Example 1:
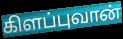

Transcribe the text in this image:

கிளப்புவான்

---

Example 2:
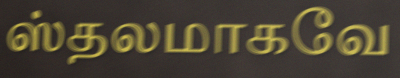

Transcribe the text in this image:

ஸ்தலமாகவே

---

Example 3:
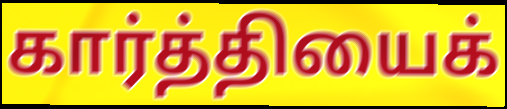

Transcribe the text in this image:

கார்த்தியைக்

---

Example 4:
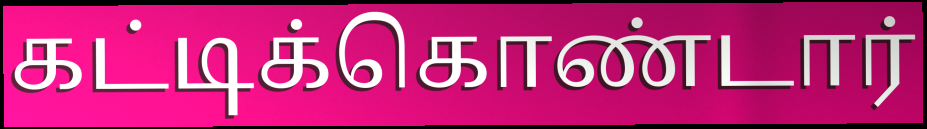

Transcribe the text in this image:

கட்டிக்கொண்டார்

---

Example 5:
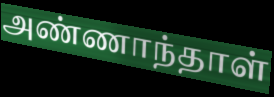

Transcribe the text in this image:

அண்ணாந்தாள்